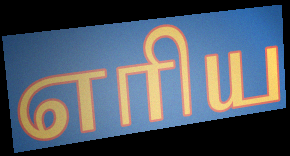
எரிய